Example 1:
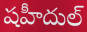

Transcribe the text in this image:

షహీదుల్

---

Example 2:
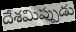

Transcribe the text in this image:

దేశమిప్పుడు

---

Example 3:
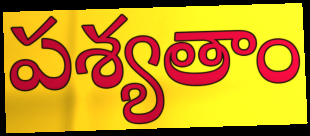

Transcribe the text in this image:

పశ్యతాం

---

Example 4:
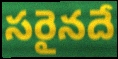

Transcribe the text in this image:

సరైనదే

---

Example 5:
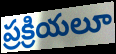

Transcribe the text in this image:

ప్రక్రియలూ